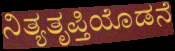
ನಿತ್ಯತೃಪ್ತಿಯೊಡನೆ